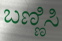
ಬಣ್ಣಿಸಿ